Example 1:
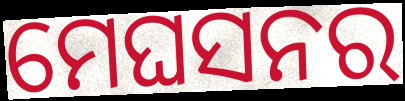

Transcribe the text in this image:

ମେଘସନର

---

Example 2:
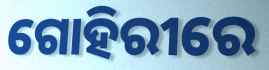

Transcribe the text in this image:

ଗୋହିରୀରେ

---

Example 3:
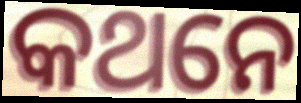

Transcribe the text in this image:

କଥନେ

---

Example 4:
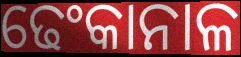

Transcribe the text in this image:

ଢେଂକାନାଳ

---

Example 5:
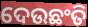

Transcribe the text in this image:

ଦେଉଛଂତି